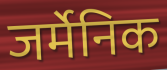
जर्मेनिक